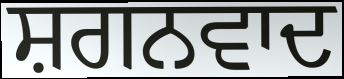
ਸ਼ਗਨਵਾਦ